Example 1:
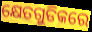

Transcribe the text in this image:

କ୍ଷେତଗୁଡିକରେ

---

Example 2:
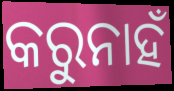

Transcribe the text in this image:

କରୁନାହଁ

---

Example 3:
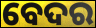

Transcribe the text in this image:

ବେଦର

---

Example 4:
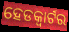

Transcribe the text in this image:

ହେଡକ୍ୱାର୍ଟର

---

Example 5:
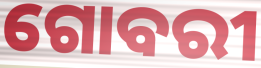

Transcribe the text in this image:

ଗୋବରୀ